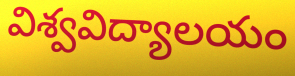
విశ్వవిద్యాలయం